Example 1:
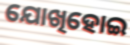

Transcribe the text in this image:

ଯୋଖିହୋଇ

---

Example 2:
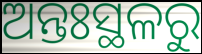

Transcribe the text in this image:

ଅନ୍ତଃସ୍ଥଳରୁ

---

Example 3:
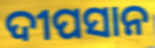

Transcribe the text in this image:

ଦୀପସାନ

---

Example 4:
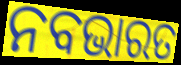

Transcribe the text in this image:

ନବଭାରତ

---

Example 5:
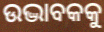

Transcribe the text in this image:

ଉଦ୍ଭାବକକୁ